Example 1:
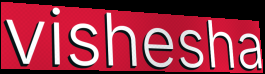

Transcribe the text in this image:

vishesha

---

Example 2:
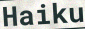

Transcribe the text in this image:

Haiku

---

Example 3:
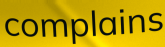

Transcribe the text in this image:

complains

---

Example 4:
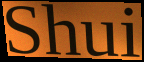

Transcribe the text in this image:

Shui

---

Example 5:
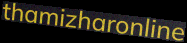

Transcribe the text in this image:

thamizharonline